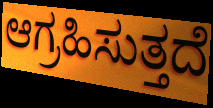
ಆಗ್ರಹಿಸುತ್ತದೆ